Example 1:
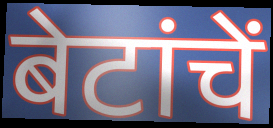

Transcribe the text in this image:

बेटांचें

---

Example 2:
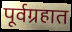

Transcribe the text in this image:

पूर्वग्रहात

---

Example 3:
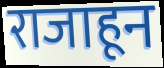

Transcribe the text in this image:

राजाहून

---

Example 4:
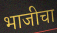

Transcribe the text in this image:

भाजीचा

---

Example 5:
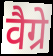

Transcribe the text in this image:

वैग्रे